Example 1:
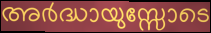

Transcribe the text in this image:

അർദ്ധായുസ്സോടെ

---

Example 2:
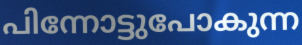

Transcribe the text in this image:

പിന്നോട്ടുപോകുന്ന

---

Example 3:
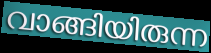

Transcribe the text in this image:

വാങ്ങിയിരുന്ന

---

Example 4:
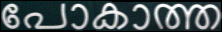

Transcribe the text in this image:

പോകാത്ത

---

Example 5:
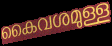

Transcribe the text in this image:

കൈവശമുള്ള